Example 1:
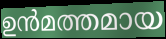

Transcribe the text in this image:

ഉൻമത്തമായ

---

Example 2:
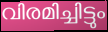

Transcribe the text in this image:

വിരമിച്ചിട്ടും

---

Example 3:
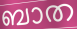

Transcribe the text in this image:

ബാത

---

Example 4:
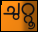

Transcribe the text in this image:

ചുറ്റൂ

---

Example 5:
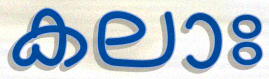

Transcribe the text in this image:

കലാഃ